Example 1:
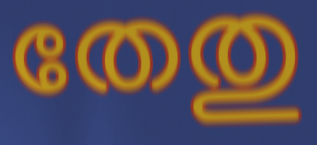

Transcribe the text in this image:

തേതു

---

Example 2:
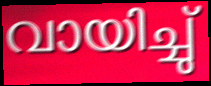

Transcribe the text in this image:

വായിച്ചു്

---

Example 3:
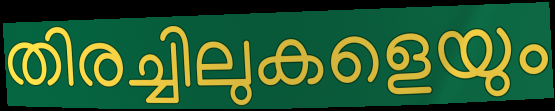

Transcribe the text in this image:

തിരച്ചിലുകളെയും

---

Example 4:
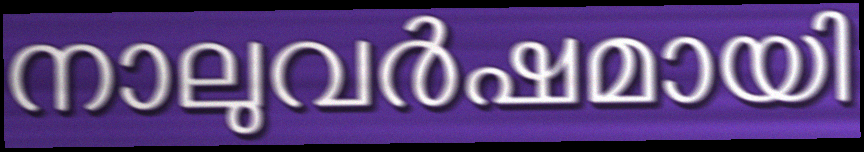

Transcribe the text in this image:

നാലുവർഷമായി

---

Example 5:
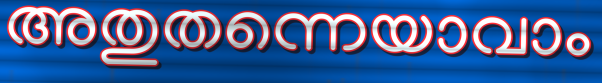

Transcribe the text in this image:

അതുതന്നെയാവാം